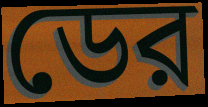
ডের